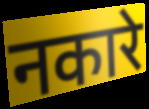
नकारे